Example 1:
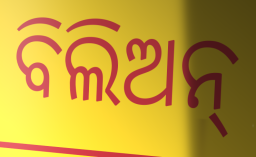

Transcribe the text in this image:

ବିଲିଅନ୍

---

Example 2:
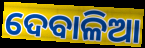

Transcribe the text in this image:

ଦେବାଳିଆ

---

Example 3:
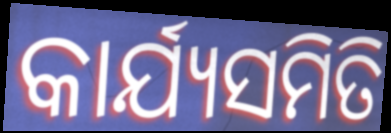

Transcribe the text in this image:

କାର୍ଯ୍ୟସମିତି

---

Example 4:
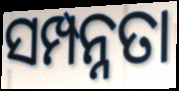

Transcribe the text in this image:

ସମ୍ପନ୍ନତା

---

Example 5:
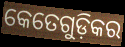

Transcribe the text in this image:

କେତେଗୁଡ଼ିକର